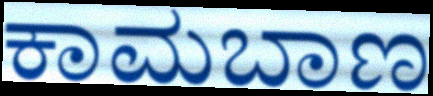
ಕಾಮಬಾಣ